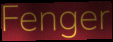
Fenger